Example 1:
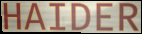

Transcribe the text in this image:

HAIDER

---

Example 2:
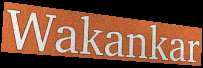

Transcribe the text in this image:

Wakankar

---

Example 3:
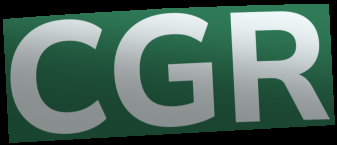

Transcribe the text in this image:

CGR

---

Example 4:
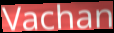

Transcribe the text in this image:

Vachan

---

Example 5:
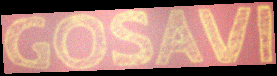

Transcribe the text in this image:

GOSAVI